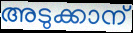
അടുക്കാന്